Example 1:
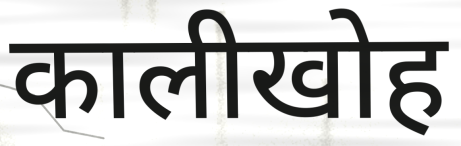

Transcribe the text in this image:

कालीखोह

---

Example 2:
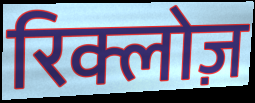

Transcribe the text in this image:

रिक्लोज़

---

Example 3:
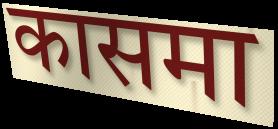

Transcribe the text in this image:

कासमा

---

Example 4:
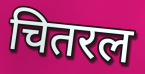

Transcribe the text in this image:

चितरल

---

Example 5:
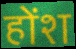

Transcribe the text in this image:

होंश